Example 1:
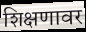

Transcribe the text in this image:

शिक्षणावर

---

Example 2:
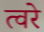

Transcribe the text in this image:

त्वरे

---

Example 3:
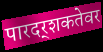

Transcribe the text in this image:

पारदर्शकतेवर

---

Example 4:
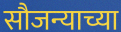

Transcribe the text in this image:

सौजन्याच्या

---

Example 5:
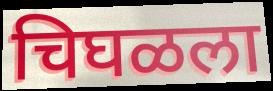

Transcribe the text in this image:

चिघळला